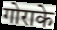
गोराके